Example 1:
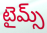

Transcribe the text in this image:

టైమ్స్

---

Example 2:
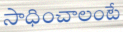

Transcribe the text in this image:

సాధించాలంటే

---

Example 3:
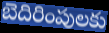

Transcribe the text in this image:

బెదిరింపులకు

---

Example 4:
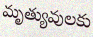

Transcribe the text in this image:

మృత్యువులకు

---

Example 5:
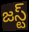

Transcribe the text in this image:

జస్ట్